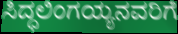
ಸಿದ್ಧಲಿಂಗಯ್ಯನವರಿಗೆ